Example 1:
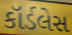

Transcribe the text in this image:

કૉર્ડલેસ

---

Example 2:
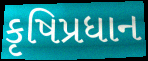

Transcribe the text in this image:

કૃષિપ્રધાન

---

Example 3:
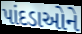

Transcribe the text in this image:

પાંદડાઓને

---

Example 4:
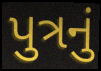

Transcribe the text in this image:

પુત્રનું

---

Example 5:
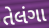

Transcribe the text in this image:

તેલંગા